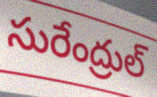
సురేంద్రుల్